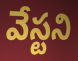
వేస్టని